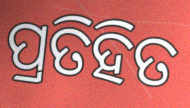
ପ୍ରତିହିତ